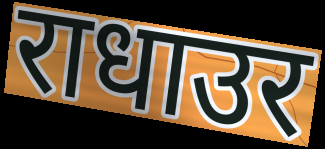
राधाउर